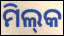
ମିଲ୍‌କ